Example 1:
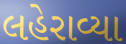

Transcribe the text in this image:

લહેરાવ્યા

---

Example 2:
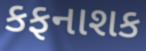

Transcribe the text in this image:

કફનાશક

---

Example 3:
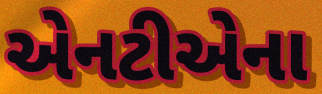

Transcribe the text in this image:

એનટીએના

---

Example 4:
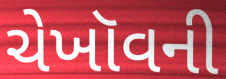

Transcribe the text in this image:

ચેખૉવની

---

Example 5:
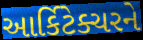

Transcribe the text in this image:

આર્કિટેક્ચરને